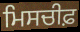
ਮਿਸਚੀਫ਼